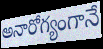
అనారోగ్యంగానే